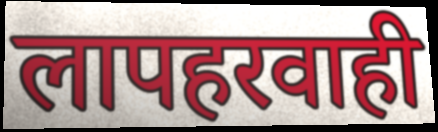
लापहरवाही